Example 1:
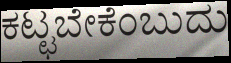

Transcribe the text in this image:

ಕಟ್ಟಬೇಕೆಂಬುದು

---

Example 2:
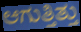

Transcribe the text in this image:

ಆಗುತ್ತಿತ್ತು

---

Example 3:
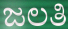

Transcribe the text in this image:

ಜಲತಿ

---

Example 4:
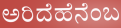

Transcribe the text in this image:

ಅರಿದೆಹೆನೆಂಬ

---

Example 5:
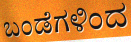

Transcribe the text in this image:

ಬಂಡೆಗಳಿಂದ